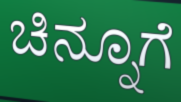
ಚಿನ್ನೂಗೆ